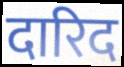
दारिद